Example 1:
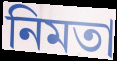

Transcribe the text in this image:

নিমতা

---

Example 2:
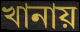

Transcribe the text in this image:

খানায়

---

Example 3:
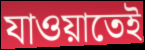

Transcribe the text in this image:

যাওয়াতেই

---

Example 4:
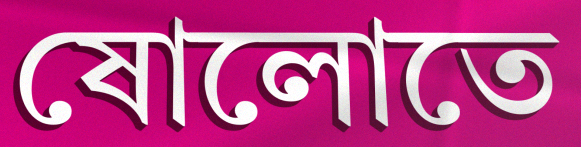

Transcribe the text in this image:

ষোলোতে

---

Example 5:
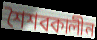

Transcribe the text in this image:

শৈশবকালীন